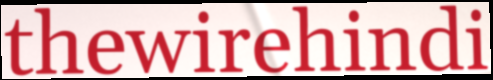
thewirehindi